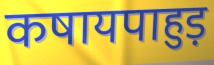
कषायपाहुड़